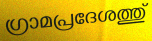
ഗ്രാമപ്രദേശത്തു്